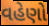
વહેણો